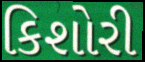
કિશોરી